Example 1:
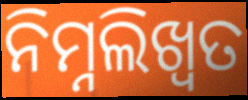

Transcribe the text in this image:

ନିମ୍ନଲିଖ୍ବତ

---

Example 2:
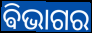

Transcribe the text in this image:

ଵିଭାଗର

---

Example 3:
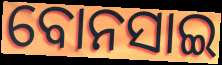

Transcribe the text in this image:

ବୋନସାଇ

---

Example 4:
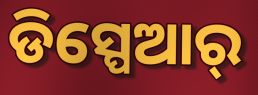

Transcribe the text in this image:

ଡିସ୍ପେଆର୍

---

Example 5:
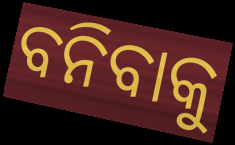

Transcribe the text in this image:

ବନିବାକୁ